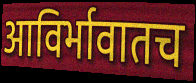
आविर्भावातच